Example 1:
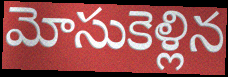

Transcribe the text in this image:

మోసుకెళ్లిన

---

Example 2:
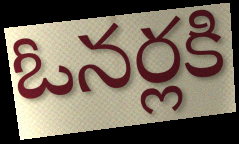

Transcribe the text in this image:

ఓనర్లకి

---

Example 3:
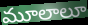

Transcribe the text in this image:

మూలాలూ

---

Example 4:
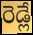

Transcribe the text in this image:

రెడ్లే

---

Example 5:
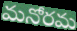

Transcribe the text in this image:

మనోరమ